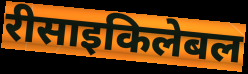
रीसाइकिलेबल